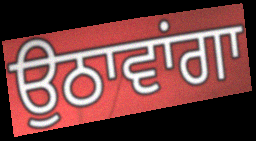
ਉਠਾਵਾਂਗਾ